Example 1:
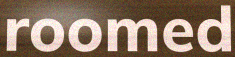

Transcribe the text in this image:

roomed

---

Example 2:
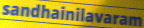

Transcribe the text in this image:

sandhainilavaram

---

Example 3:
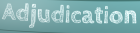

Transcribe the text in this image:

Adjudication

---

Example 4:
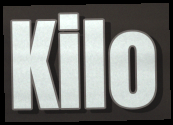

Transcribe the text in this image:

Kilo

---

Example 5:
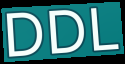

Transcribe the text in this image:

DDL